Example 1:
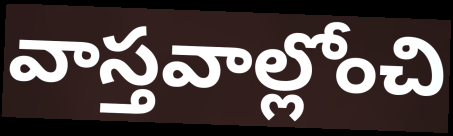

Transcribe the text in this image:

వాస్తవాల్లోంచి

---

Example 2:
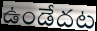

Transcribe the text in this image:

ఉండేదట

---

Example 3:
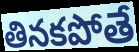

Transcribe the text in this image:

తినకపోతే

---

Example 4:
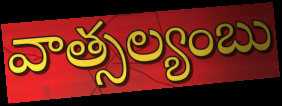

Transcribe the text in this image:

వాత్సల్యంబు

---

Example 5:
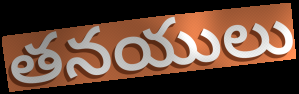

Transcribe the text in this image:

తనయులు